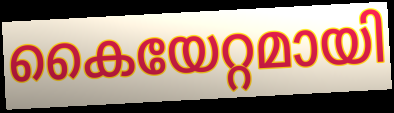
കൈയേറ്റമായി